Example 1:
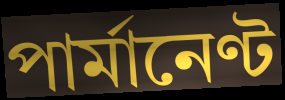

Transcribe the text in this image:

পাৰ্মানেণ্ট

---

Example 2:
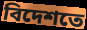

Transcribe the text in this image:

বিদেশতে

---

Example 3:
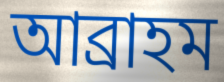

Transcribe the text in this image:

আব্ৰাহম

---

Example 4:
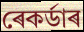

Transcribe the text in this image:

ৰেকৰ্ডাৰ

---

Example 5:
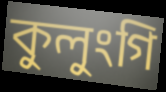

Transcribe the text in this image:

কুলুংগি